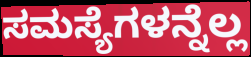
ಸಮಸ್ಯೆಗಳನ್ನೆಲ್ಲ